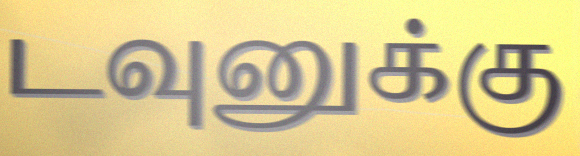
டவுனுக்கு